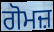
ਗੋਮਜ਼